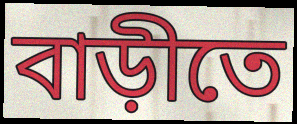
বাড়ীতে